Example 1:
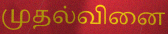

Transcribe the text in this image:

முதல்வினை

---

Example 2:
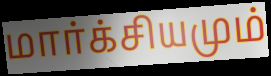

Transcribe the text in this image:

மார்க்சியமும்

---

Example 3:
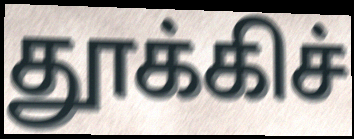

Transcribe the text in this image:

தூக்கிச்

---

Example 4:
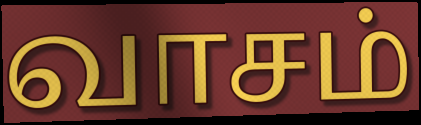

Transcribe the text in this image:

வாசம்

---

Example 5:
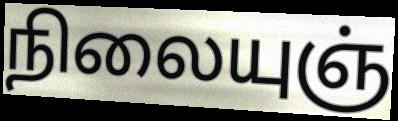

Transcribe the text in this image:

நிலையுஞ்